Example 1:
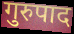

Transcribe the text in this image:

गुरुपाद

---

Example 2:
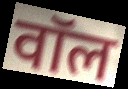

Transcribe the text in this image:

वॉल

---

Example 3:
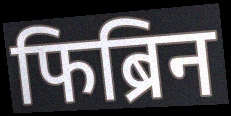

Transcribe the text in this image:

फिब्रिन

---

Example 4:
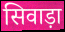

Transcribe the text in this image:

सिवाड़ा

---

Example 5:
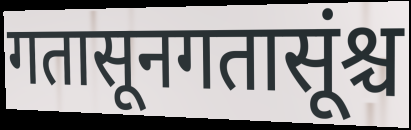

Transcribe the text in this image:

गतासूनगतासूंश्च